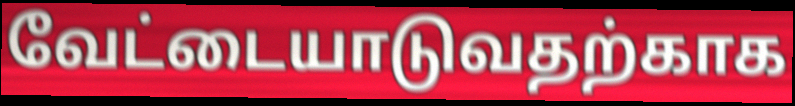
வேட்டையாடுவதற்காக